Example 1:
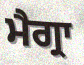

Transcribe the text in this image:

ਮੈਗ੍ਰਾ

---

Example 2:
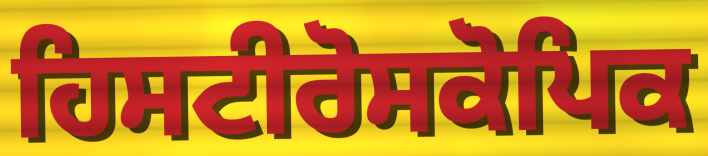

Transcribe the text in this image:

ਹਿਸਟੀਰੋਸਕੋਪਿਕ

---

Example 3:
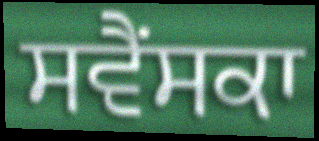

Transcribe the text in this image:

ਸਵੈਂਸਕਾ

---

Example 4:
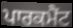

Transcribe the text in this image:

ਪਾਰਕਮੈਂਟ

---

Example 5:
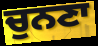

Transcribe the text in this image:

ਚੁਨਣਾ